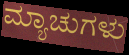
ಮ್ಯಾಚುಗಳು